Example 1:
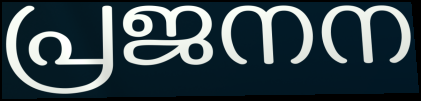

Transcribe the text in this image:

പ്രജനന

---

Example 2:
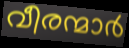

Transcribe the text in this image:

വീരന്മാർ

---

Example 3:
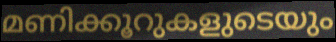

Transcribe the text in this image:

മണിക്കൂറുകളുടെയും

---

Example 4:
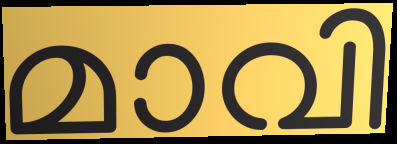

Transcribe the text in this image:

മാവി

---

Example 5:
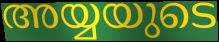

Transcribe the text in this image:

അയ്യയുടെ